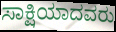
ಸಾಕ್ಷಿಯಾದವರು